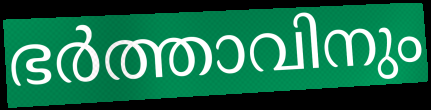
ഭർത്താവിനും